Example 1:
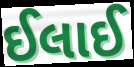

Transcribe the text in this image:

ઈલાઈ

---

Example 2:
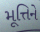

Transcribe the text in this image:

મૂત્તિને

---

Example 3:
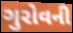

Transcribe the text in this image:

ગુરોવની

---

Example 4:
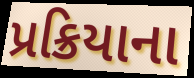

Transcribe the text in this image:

પ્રક્રિયાના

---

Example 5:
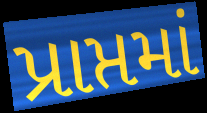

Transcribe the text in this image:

પ્રાપ્તમાં